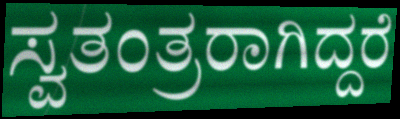
ಸ್ವತಂತ್ರರಾಗಿದ್ದರೆ